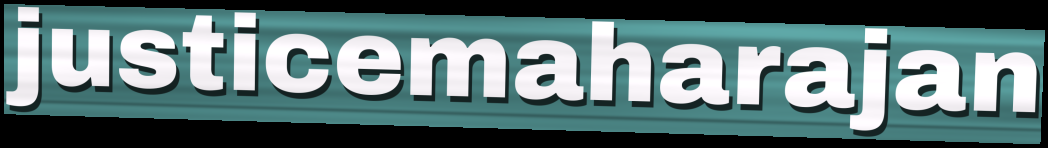
justicemaharajan